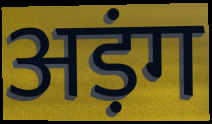
अड़ंग